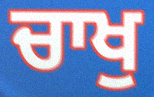
ਚਾਖੁ